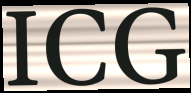
ICG